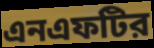
এনএফটির